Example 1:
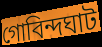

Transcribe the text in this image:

গোবিন্দঘাট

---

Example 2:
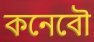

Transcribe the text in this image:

কনেবৌ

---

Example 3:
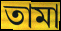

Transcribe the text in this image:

তামা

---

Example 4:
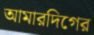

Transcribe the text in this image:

আমারদিগের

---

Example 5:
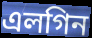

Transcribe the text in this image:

এলগিন